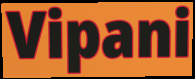
Vipani